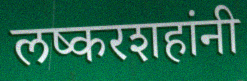
लष्करशहांनी